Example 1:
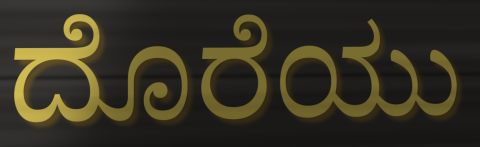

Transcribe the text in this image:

ದೊರೆಯು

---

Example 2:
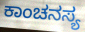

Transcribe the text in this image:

ಕಾಂಚನಸ್ಯ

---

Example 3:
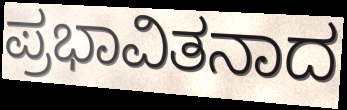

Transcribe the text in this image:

ಪ್ರಭಾವಿತನಾದ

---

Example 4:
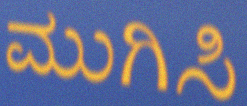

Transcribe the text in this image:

ಮುಗಿಸಿ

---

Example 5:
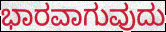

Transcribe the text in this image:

ಭಾರವಾಗುವುದು